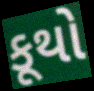
કૂથો